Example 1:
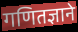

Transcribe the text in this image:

गणितज्ञाने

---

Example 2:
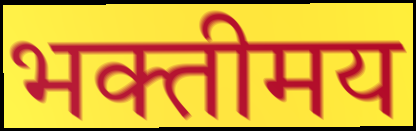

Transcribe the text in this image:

भक्तीमय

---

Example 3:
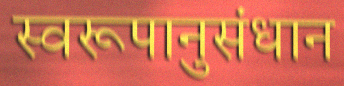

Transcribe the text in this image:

स्वरूपानुसंधान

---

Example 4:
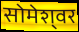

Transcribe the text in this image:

सोमेश्वर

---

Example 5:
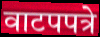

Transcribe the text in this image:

वाटपपत्रे